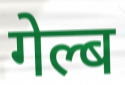
गेल्ब